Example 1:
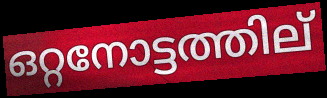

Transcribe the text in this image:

ഒറ്റനോട്ടത്തില്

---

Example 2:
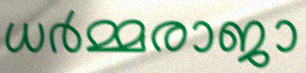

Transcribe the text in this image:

ധർമ്മരാജാ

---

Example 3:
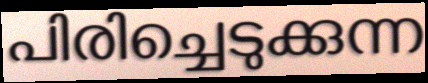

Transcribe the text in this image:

പിരിച്ചെടുക്കുന്ന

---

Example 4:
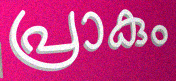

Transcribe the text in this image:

പ്രാകും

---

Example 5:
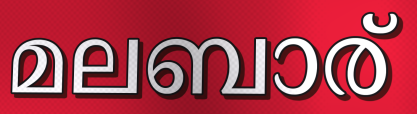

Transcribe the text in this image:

മലബാര്